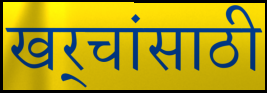
खर्चांसाठी